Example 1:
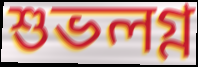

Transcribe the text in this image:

শুভলগ্ন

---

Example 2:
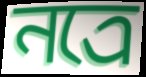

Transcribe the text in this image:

নত্রে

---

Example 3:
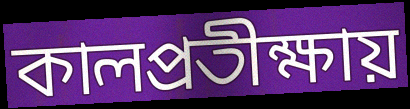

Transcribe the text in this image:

কালপ্রতীক্ষায়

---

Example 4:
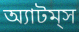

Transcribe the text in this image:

অ্যাটম্‌স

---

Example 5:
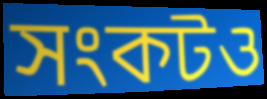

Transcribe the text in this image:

সংকটও